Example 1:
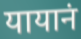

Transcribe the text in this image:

यायानं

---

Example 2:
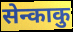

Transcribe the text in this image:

सेन्काकु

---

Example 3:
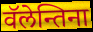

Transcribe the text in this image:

वॅलेन्तिना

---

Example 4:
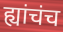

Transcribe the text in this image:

ह्यांचंच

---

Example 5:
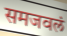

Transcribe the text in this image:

समजवलं